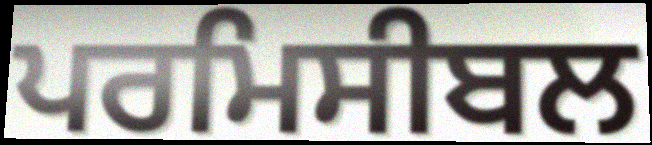
ਪਰਮਿਸੀਬਲ